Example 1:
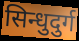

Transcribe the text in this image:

सिन्धुदुर्ग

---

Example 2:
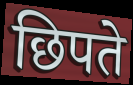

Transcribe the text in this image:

छिपते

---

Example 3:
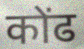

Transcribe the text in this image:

कोंढ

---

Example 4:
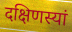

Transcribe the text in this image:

दक्षिणस्यां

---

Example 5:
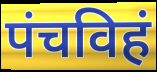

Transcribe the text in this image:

पंचविहं